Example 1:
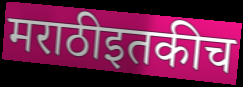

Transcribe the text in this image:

मराठीइतकीच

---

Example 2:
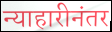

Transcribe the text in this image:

न्याहारीनंतर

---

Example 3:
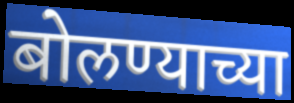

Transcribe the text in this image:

बोलण्याच्या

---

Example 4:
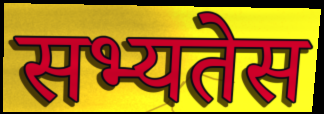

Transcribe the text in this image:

सभ्यतेस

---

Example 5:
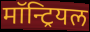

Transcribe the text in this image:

मॉन्ट्रियल